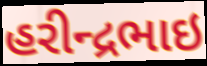
હરીન્દ્રભાઇ